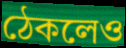
ঠেকলেও